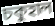
চকুহাল